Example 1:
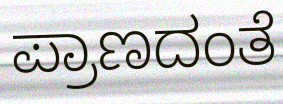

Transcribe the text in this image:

ಪ್ರಾಣದಂತೆ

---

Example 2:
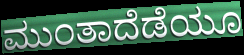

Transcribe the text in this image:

ಮುಂತಾದೆಡೆಯೂ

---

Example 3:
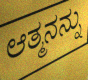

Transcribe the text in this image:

ಆತ್ಮನನ್ನು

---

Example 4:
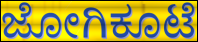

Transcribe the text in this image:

ಜೋಗಿಕೂಟೆ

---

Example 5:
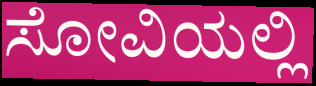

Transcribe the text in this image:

ಸೋವಿಯಲ್ಲಿ